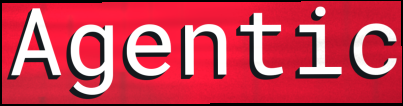
Agentic